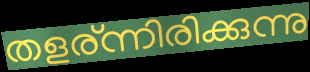
തളര്ന്നിരിക്കുന്നു